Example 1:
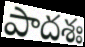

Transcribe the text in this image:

పాదశః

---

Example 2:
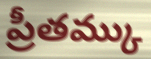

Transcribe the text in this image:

ప్రీతమ్కు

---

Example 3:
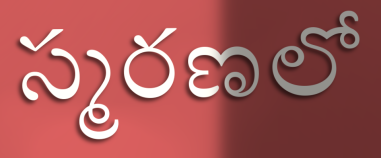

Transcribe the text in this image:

స్మరణలో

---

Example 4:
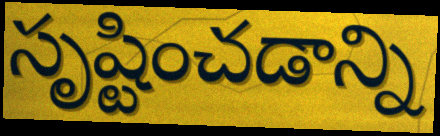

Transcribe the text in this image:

సృష్టించడాన్ని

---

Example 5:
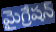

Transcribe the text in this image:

మైగ్రేషన్